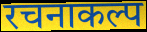
रचनाकल्प